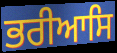
ਭਰੀਆਸਿ